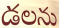
డలను